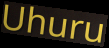
Uhuru